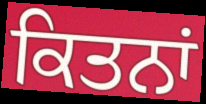
ਕਿਤਨਾਂ